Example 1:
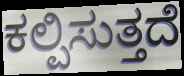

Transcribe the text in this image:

ಕಲ್ಪಿಸುತ್ತದೆ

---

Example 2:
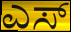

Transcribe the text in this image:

ಎಸ್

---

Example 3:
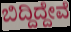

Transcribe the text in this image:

ಬಿದ್ದಿದ್ದೇವೆ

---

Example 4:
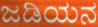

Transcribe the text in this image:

ಜಡಿಯನ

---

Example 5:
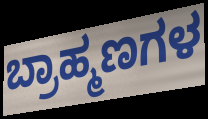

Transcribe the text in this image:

ಬ್ರಾಹ್ಮಣಗಳ